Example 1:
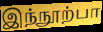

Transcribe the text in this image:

இந்நூற்பா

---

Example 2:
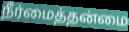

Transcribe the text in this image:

நீர்மைத்தன்மை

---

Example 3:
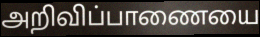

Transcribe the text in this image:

அறிவிப்பாணையை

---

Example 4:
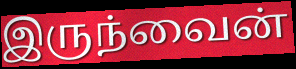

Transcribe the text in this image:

இருந்வைன்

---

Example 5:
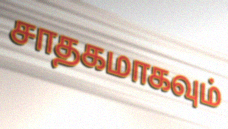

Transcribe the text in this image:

சாதகமாகவும்